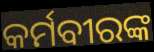
କର୍ମବୀରଙ୍କ